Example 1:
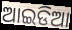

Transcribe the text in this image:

ଆଇଡିଆ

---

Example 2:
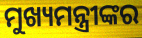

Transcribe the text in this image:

ମୁଖ୍ୟମନ୍ତ୍ରୀଙ୍କର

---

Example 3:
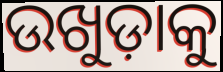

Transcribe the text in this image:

ଉଖୁଡ଼ାକୁ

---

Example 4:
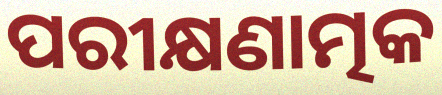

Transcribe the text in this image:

ପରୀକ୍ଷଣାତ୍ମକ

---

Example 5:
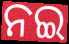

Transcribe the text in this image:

ନଇ